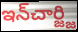
ఇన్‌చార్జ్జి